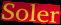
Soler